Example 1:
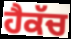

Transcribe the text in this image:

ਹੈਕੱਚ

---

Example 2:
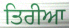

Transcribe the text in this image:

ਤਿਰੀਆ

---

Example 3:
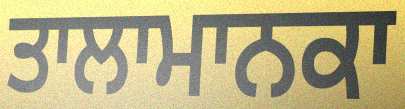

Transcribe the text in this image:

ਤਾਲਾਮਾਨਕਾ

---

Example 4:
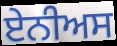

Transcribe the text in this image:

ਏਨੀਅਸ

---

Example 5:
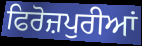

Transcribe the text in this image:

ਫਿਰੋਜ਼ਪੁਰੀਆਂ